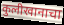
कुलीखानाचा